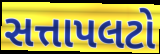
સત્તાપલટો